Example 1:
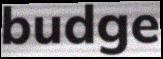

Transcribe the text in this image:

budge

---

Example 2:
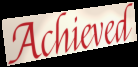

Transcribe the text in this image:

Achieved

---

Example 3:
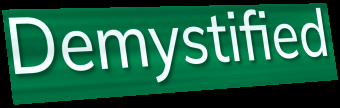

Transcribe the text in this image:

Demystified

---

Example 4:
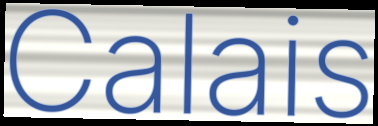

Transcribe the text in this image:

Calais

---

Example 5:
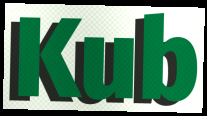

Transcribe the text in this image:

Kub